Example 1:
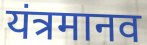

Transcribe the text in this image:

यंत्रमानव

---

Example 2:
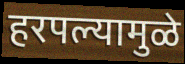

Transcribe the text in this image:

हरपल्यामुळे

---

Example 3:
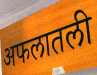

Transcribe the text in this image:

अफलातली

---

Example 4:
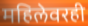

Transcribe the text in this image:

महिलेवरही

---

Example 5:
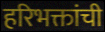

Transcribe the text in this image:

हरिभक्तांची